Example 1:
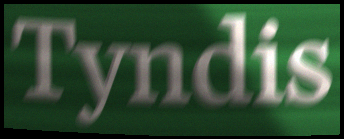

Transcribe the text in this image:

Tyndis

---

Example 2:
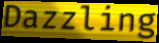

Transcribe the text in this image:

Dazzling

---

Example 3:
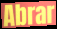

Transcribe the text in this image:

Abrar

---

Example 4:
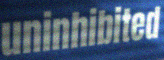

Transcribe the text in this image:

uninhibited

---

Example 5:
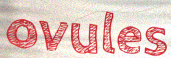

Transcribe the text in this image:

ovules